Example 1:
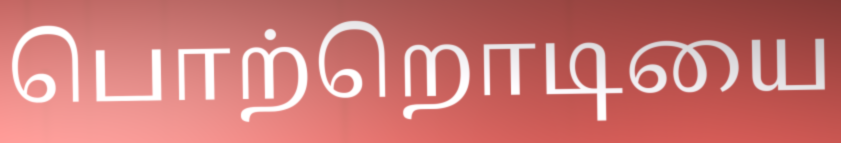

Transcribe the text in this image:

பொற்றொடியை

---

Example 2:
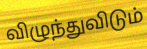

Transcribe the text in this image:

விழுந்துவிடும்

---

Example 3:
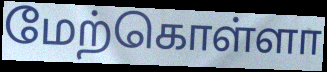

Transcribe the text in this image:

மேற்கொள்ளா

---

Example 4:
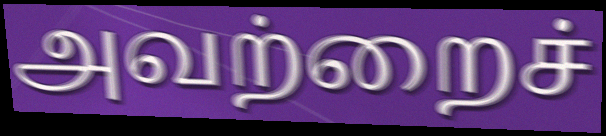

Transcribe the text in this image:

அவற்றைச்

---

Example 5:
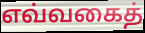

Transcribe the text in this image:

எவ்வகைத்